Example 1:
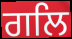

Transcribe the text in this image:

ਗਲਿ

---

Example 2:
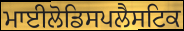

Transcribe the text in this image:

ਮਾਈਲੋਡਿਸਪਲੈਸਟਿਕ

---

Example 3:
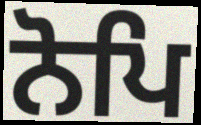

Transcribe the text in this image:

ਨੋਪਿ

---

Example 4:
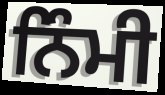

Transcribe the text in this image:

ਨਿੰਮੀ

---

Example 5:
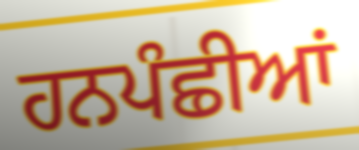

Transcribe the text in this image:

ਹਨਪੰਛੀਆਂ